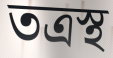
তত্রস্থ